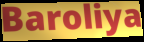
Baroliya